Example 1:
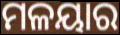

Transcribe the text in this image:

ମଳୟାର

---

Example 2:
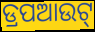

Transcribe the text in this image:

ଡ୍ରପଆଉଟ୍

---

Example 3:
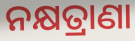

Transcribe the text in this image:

ନକ୍ଷତ୍ରାଣା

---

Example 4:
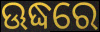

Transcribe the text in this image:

ଊଦ୍ଧରେ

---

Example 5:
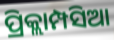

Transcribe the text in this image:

ପ୍ରିକ୍ଲାମ୍ପସିଆ